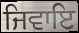
ਜਿਵਾਇ